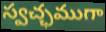
స్వచ్ఛముగా